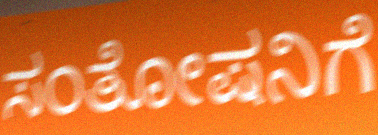
ಸಂತೋಷನಿಗೆ